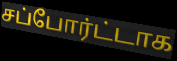
சப்போர்ட்டாக